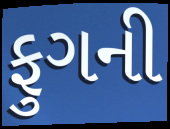
ફુગની